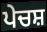
ਪੇਚਸ਼